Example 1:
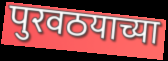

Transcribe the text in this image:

पुरवठयाच्या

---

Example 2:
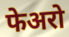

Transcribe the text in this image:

फेअरो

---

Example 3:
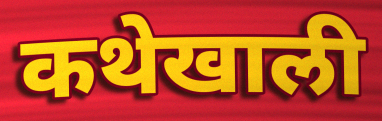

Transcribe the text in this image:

कथेखाली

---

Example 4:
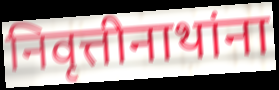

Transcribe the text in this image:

निवृत्तीनाथांना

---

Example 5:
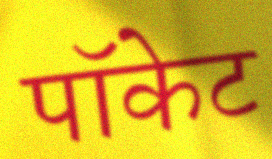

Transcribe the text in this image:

पॉकेट